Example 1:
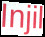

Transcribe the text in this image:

Injil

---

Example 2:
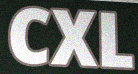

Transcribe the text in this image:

CXL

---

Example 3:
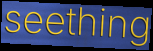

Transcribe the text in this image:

seething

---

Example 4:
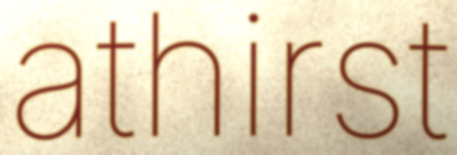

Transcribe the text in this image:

athirst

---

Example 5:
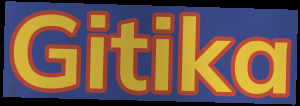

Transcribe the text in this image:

Gitika